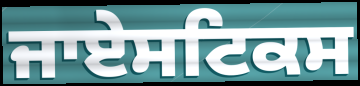
ਜਾਏਸਟਿਕਸ